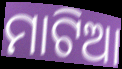
ମାଟିଆ